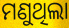
ମଣୁଥିଲା